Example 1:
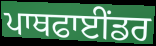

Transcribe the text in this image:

ਪਾਥਫਾਈਂਡਰ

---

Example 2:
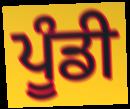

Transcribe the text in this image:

ਪੂੰਡੀ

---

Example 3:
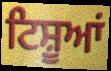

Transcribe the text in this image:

ਟਿਸ਼ੂਆਂ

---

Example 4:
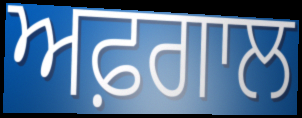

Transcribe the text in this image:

ਅਫ਼ਗਾਲ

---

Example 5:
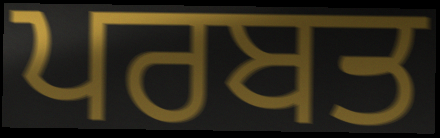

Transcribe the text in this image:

ਪਰਬਤ